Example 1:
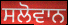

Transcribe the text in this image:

ਸਲੋਵਾਨ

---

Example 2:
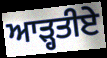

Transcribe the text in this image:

ਆੜ੍ਹਤੀਏ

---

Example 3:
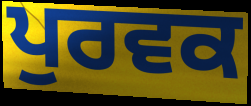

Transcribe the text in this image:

ਪੁਰਵਕ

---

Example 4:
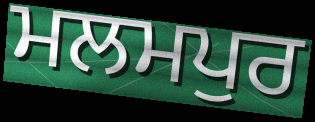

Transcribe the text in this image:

ਮਲਮਪੁਰ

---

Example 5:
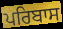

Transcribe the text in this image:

ਪਰਿਬਾਸ